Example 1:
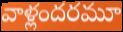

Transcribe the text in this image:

వాళ్లందరమూ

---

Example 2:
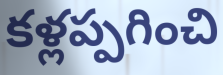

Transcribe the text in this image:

కళ్లప్పగించి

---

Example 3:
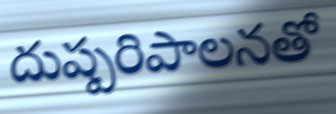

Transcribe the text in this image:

దుష్పరిపాలనతో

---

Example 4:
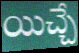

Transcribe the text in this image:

యిచ్చే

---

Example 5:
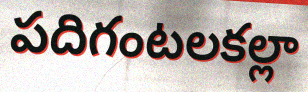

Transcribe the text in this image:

పదిగంటలకల్లా